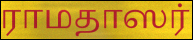
ராமதாஸர்